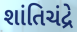
શાંતિચંદ્રે